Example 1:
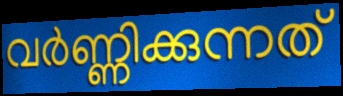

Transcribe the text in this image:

വർണ്ണിക്കുന്നത്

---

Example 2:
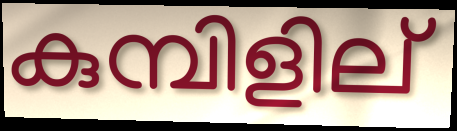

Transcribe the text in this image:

കുമ്പിളില്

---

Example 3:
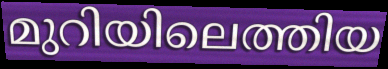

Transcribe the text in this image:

മുറിയിലെത്തിയ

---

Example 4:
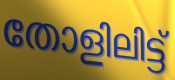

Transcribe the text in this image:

തോളിലിട്ട്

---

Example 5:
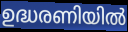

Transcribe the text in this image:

ഉദ്ധരണിയിൽ